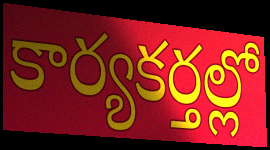
కార్యకర్తల్లో